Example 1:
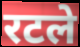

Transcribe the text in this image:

रटले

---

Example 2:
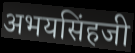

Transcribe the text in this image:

अभयसिंहजी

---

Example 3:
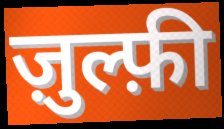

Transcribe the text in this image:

ज़ुल्फ़ी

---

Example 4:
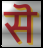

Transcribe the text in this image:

सॆ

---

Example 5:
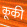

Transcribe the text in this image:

कूकी